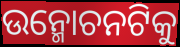
ଉନ୍ମୋଚନଟିକୁ